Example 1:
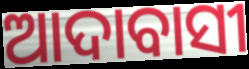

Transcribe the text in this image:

ଆଦାବାସୀ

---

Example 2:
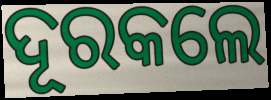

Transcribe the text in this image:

ଦୂରକଲେ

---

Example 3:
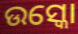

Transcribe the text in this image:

ଉସ୍କୋ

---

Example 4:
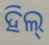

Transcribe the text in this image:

ହିଲ୍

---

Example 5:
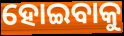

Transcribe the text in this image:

ହୋଇବାକୁ